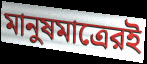
মানুষমাত্রেরই